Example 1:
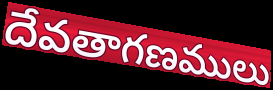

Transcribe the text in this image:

దేవతాగణములు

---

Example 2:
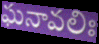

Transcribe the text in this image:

ఘనావలిః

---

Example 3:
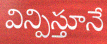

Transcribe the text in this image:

విన్పిస్తూనే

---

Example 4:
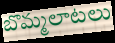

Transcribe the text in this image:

బొమ్మలాటలు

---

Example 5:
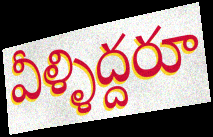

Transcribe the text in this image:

వీళ్ళిద్దరూ